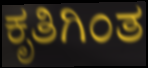
ಕೃತಿಗಿಂತ